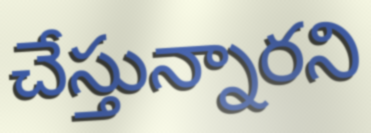
చేస్తున్నారని